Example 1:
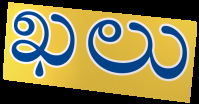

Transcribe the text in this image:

ఖలు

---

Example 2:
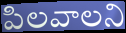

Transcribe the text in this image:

పిలవాలని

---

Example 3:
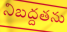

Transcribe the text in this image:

నిబద్దతను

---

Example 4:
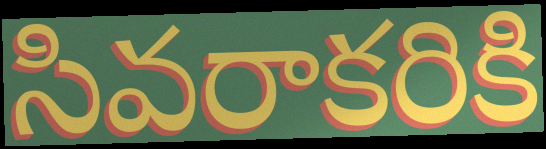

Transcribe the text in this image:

సివరాకరికి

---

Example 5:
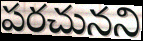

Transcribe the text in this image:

పరచునని